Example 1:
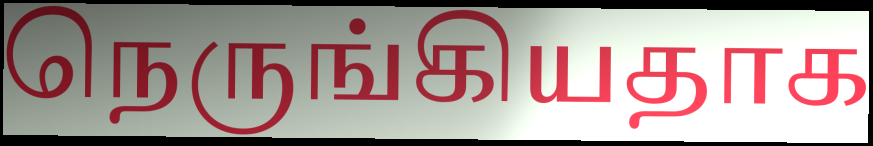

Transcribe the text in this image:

நெருங்கியதாக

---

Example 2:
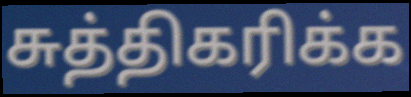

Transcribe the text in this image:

சுத்திகரிக்க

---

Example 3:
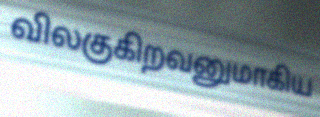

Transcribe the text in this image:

விலகுகிறவனுமாகிய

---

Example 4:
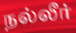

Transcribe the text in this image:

நல்லீர்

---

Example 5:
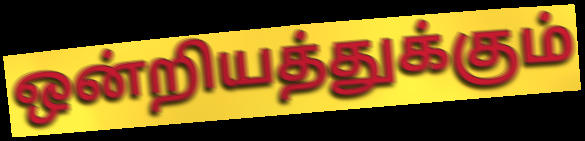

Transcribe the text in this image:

ஒன்றியத்துக்கும்